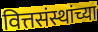
वित्तसंस्थांच्या